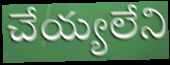
చేయ్యలేని